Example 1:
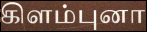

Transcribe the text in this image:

கிளம்புனா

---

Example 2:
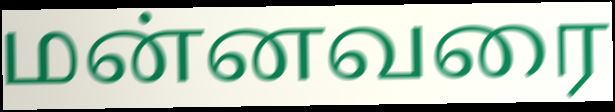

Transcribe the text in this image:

மன்னவரை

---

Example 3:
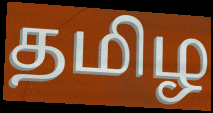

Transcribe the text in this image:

தமிழ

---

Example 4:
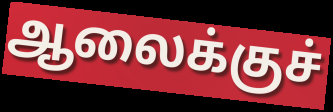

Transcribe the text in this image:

ஆலைக்குச்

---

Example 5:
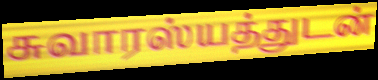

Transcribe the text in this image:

சுவாரஸ்யத்துடன்